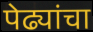
पेढ्यांचा